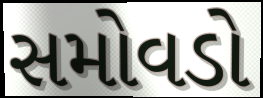
સમોવડો